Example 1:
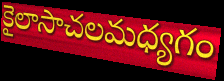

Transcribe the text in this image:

కైలాసాచలమధ్యగం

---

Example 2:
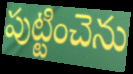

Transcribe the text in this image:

పుట్టించెను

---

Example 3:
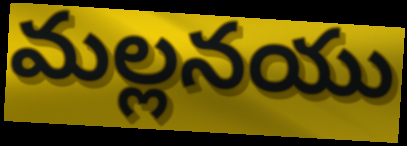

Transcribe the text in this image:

మల్లనయు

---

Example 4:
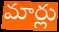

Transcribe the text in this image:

మార్లు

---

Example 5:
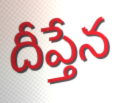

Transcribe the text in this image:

దీప్తేన